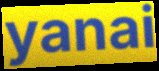
yanai